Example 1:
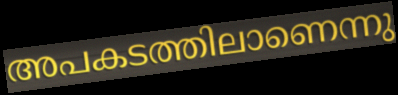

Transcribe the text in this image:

അപകടത്തിലാണെന്നു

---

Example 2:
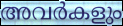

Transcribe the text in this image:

അവർകളും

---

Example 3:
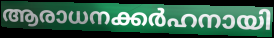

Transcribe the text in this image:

ആരാധനക്കർഹനായി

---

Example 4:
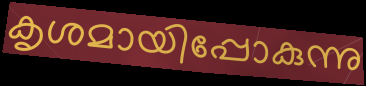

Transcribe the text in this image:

കൃശമായിപ്പോകുന്നു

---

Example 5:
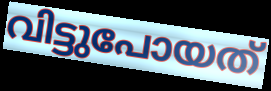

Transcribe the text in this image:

വിട്ടുപോയത്